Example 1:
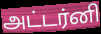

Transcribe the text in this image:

அட்டர்னி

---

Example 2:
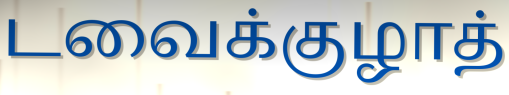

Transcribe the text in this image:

டவைக்குழாத்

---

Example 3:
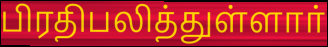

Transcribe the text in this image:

பிரதிபலித்துள்ளார்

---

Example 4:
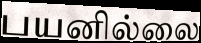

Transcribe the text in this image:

பயனில்லை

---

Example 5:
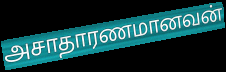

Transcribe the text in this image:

அசாதாரணமானவன்